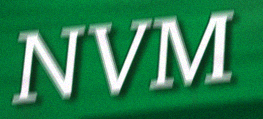
NVM